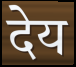
देय